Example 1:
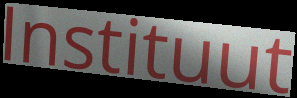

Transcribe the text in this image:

Instituut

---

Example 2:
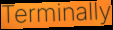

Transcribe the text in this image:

Terminally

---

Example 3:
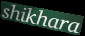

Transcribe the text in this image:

shikhara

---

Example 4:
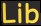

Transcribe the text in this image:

Lib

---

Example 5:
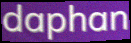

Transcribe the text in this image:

daphan